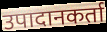
उपादानकर्ता